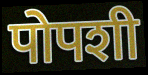
पोपशी